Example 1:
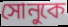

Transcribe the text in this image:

সোনুকে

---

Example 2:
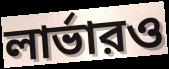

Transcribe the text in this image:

লার্ভারও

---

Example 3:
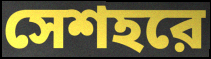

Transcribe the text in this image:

সেশহরে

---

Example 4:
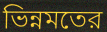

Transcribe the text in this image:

ভিন্নমতের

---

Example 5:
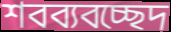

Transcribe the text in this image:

শবব্যবচ্ছেদ